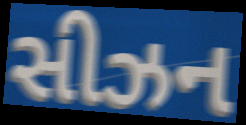
સીઝન